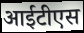
आईटीएस